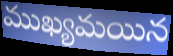
ముఖ్యమయిన